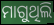
ମାଗୁଥିଲି